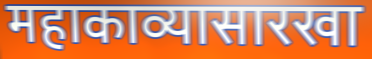
महाकाव्यासारखा